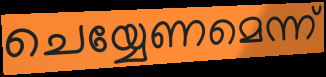
ചെയ്യേണമെന്ന്